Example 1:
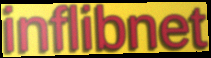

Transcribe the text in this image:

inflibnet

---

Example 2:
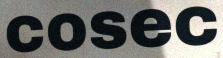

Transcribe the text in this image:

cosec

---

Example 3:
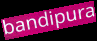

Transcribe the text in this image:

bandipura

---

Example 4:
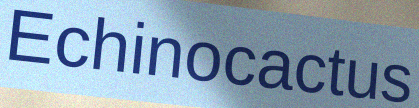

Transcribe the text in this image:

Echinocactus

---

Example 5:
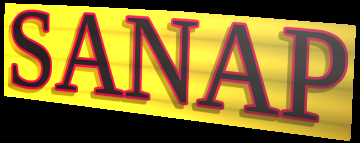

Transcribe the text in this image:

SANAP